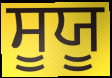
ਸੂਯੂ